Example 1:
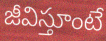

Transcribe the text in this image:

జీవిస్తూంటే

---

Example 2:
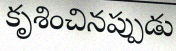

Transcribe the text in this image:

కృశించినప్పుడు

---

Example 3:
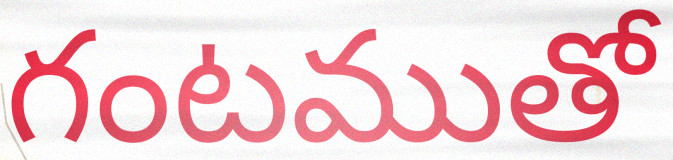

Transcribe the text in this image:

గంటముతో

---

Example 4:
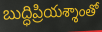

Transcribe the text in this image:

బుద్ధిప్రియశ్శాంతో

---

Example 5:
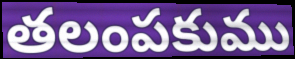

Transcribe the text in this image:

తలంపకుము